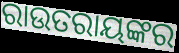
ରାଉତରାୟଙ୍କର